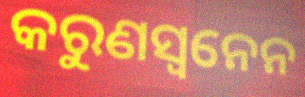
କରୁଣସ୍ଵନେନ